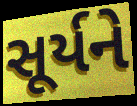
સૂર્યને